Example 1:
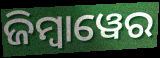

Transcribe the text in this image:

ଜିମ୍ୱାୱେର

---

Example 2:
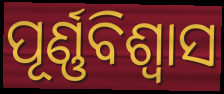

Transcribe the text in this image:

ପୂର୍ଣ୍ଣବିଶ୍ଵାସ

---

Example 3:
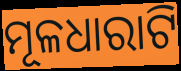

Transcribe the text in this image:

ମୂଳଧାରାଟି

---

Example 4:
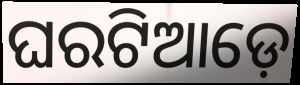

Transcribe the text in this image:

ଘରଟିଆଡ଼େ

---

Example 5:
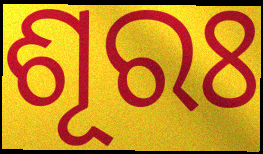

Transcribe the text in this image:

ଶୂରଃ